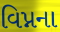
વિપ્નના